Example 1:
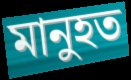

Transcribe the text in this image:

মানুহত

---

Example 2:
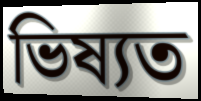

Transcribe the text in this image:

ভিষ্যত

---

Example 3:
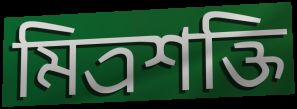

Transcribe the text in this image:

মিত্ৰশক্তি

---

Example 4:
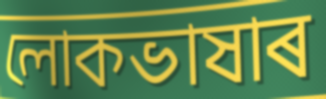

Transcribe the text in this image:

লোকভাষাৰ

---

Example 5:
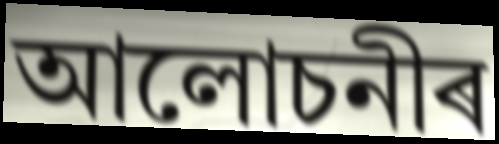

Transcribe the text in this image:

আলোচনীৰ